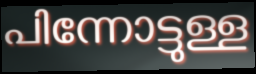
പിന്നോട്ടുള്ള